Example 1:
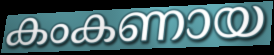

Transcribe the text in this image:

കംകണായ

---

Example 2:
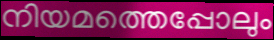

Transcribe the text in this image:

നിയമത്തെപ്പോലും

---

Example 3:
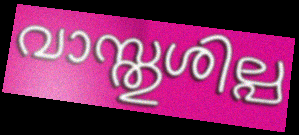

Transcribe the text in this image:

വാസ്തുശില്പ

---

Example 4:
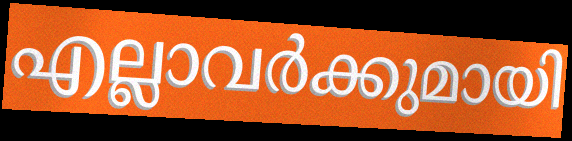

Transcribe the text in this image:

എല്ലാവർക്കുമായി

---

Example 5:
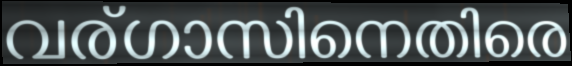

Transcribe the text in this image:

വര്ഗാസിനെതിരെ